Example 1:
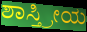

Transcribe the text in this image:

ಶಾಸ್ತ್ರೀಯ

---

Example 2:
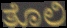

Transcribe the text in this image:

ತೊಲಿ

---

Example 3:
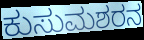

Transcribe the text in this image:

ಕುಸುಮಶರನ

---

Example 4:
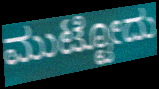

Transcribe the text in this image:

ಮುಟ್ಟೋದು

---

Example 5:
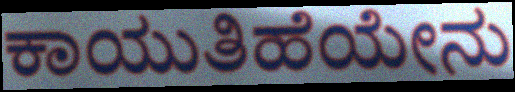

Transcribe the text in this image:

ಕಾಯುತಿಹೆಯೇನು